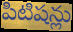
పిటిషన్లు